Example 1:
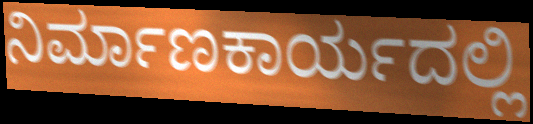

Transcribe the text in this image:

ನಿರ್ಮಾಣಕಾರ್ಯದಲ್ಲಿ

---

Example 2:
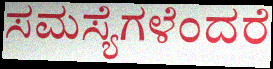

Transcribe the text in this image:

ಸಮಸ್ಯೆಗಳೆಂದರೆ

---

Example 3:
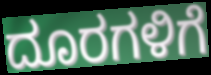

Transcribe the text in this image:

ದೂರಗಳಿಗೆ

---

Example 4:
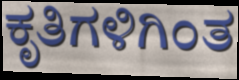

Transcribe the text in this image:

ಕೃತಿಗಳಿಗಿಂತ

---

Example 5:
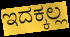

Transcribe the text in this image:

ಇದಕ್ಕಲ್ಲ